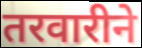
तरवारीने